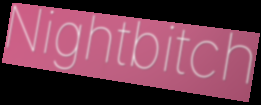
Nightbitch